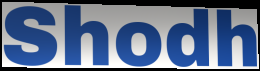
Shodh